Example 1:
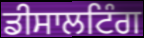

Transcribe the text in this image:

ਡੀਸਾਲਟਿੰਗ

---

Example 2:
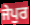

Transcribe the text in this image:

ਜੇਪੁਰ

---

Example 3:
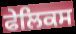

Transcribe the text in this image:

ਫੇਲਿਕਸ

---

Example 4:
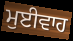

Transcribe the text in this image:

ਮੁਈਵਾਹ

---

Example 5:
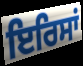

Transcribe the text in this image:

ਇਰਿਸਾਂ